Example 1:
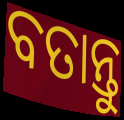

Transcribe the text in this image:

ବତାନ୍ତୁ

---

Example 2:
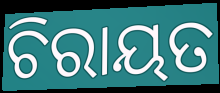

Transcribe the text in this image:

ଚିରାୟତ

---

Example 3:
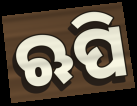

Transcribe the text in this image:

ଋପି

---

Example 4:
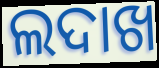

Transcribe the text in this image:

ଲଦାଖ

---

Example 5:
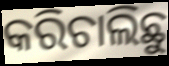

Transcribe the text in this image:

କରିଚାଲିଛୁ